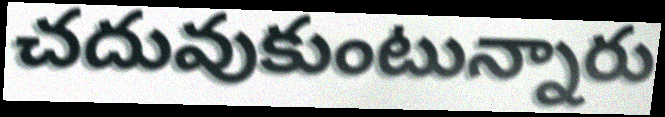
చదువుకుంటున్నారు